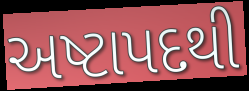
અષ્ટાપદથી